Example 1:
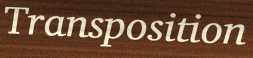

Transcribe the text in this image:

Transposition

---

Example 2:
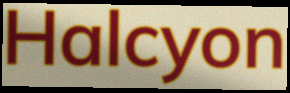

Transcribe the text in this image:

Halcyon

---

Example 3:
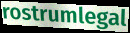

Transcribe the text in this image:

rostrumlegal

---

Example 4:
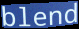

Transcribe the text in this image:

blend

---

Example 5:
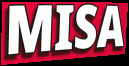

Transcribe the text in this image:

MISA